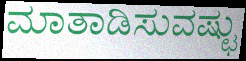
ಮಾತಾಡಿಸುವಷ್ಟು